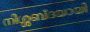
നിശ്ശബ്ദയായി